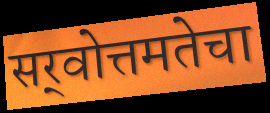
सर्वोत्तमतेचा